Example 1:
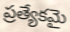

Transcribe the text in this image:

ప్రత్యేకమై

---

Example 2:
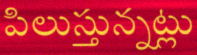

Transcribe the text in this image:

పిలుస్తున్నట్లు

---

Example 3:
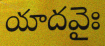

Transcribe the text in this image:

యాదవైః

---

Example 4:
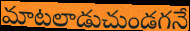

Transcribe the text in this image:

మాటలాడుచుండగనే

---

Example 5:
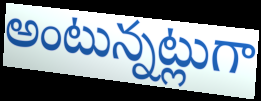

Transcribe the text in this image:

అంటున్నట్లుగా